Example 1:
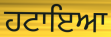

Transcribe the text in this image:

ਹਟਾਇਆ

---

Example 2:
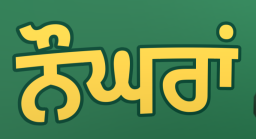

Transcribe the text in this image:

ਨੌਘਰਾਂ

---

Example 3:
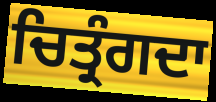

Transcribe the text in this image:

ਚਿਤ੍ਰੰਗਦਾ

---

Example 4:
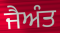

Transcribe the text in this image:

ਜੈਅੰਤ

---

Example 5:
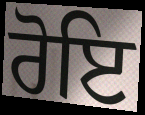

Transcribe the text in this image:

ਰੋਇ